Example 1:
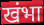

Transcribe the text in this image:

खंभा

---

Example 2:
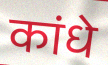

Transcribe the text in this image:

कांधे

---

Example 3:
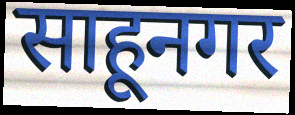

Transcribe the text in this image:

साहूनगर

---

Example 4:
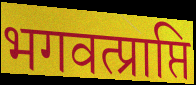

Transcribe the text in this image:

भगवत्प्राप्ति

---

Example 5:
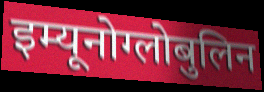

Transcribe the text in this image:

इम्यूनोग्लोबुलिन